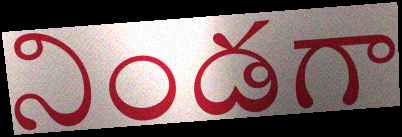
నిండగా